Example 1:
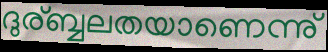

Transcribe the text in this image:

ദുര്ബ്ബലതയാണെന്നു്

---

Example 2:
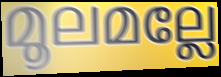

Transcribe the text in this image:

മൂലമല്ലേ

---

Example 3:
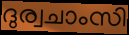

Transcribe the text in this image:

ദുര്വചാംസി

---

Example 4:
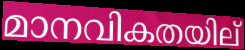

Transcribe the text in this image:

മാനവികതയില്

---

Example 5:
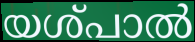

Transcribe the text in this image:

യശ്പാൽ